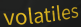
volatiles